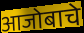
आजोबाचे